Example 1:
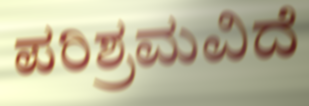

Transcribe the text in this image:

ಪರಿಶ್ರಮವಿದೆ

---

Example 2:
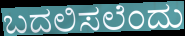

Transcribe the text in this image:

ಬದಲಿಸಲೆಂದು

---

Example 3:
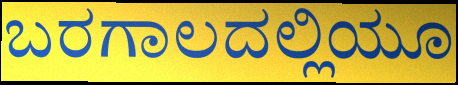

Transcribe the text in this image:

ಬರಗಾಲದಲ್ಲಿಯೂ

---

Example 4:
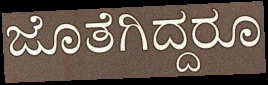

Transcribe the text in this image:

ಜೊತೆಗಿದ್ದರೂ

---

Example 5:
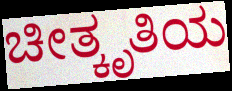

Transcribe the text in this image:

ಚೀತ್ಕೃತಿಯ